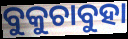
ବୁକୁଚାବୁହା